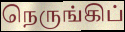
நெருங்கிப்